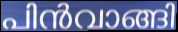
പിൻവാങ്ങി